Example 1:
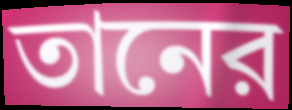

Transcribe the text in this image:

তানের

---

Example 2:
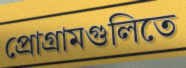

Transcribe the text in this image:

প্রোগ্রামগুলিতে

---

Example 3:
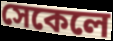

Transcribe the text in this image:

সেকেলে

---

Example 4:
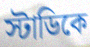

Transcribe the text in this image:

স্টাডিকে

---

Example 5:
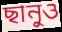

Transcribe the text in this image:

ছানুও